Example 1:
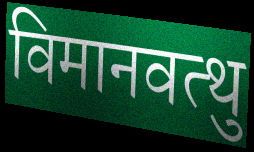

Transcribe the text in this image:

विमानवत्थु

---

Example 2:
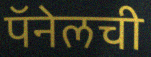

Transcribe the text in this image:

पॅनेलची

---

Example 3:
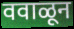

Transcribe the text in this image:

ववाळून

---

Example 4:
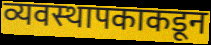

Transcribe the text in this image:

व्यवस्थापकाकडून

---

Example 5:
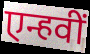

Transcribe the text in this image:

एन्हवीं